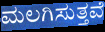
ಮಲಗಿಸುತ್ತವೆ